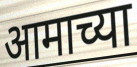
आमाच्या